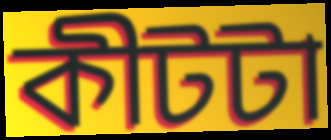
কীটটা